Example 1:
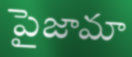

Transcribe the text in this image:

పైజామా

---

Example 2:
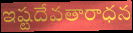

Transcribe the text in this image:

ఇష్టదేవతారాధన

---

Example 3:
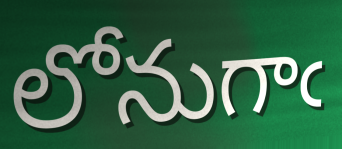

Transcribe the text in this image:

లోనుగాఁ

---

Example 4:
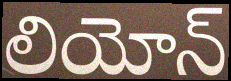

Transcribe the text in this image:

లియోన్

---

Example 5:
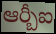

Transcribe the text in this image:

ఆర్బీఐ